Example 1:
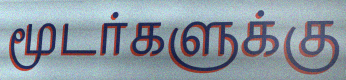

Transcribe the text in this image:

மூடர்களுக்கு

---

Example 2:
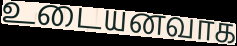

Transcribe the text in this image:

உடையனவாக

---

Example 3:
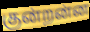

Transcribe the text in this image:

குன்றன்ன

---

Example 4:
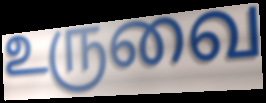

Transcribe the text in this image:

உருவை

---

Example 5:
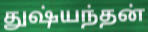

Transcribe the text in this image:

துஷ்யந்தன்